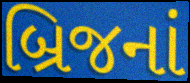
બ્રિજનાં